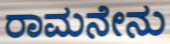
ರಾಮನೇನು